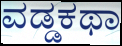
ವಡ್ಡಕಥಾ